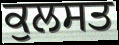
ਕੁਲਸਤ